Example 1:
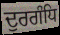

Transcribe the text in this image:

ਦੁਰਗੰਧਿ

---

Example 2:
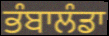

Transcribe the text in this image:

ਭੰਬਾਲੰਡਾ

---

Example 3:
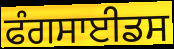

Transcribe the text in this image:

ਫੰਗਸਾਈਡਸ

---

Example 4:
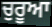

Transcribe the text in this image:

ਚੁਰੂਆ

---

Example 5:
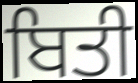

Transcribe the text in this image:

ਬਿਤੀ